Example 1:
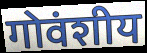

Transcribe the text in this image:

गोवंशीय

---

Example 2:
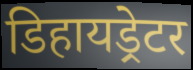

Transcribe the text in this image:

डिहायड्रेटर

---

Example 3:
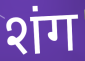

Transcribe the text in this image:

शंग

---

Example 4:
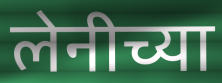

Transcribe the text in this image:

लेनीच्या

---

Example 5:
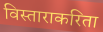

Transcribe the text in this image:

विस्ताराकरिता